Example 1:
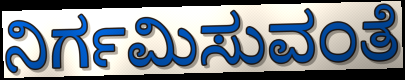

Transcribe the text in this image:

ನಿರ್ಗಮಿಸುವಂತೆ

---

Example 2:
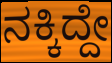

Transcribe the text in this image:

ನಕ್ಕಿದ್ದೇ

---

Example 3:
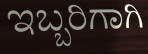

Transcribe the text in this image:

ಇಬ್ಬರಿಗಾಗಿ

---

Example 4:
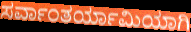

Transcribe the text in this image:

ಸರ್ವಾಂತರ್ಯಾಮಿಯಾಗಿ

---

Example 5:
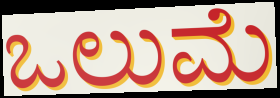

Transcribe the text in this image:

ಒಲುಮೆ